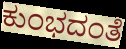
ಕುಂಭದಂತೆ